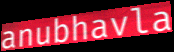
anubhavla